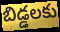
బిడ్డలకు